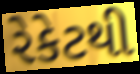
રેકેટથી